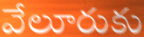
వేలూరుకు